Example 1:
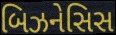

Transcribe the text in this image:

બિઝનેસિસ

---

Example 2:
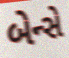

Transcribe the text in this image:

બેન્સે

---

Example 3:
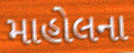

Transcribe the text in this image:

માહોલના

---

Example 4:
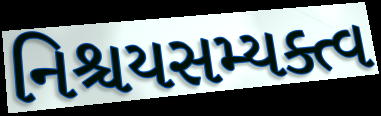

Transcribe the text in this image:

નિશ્ચયસમ્યક્ત્વ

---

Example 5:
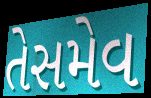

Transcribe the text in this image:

તેસમેવ